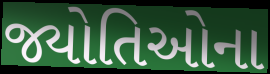
જ્યોતિઓના